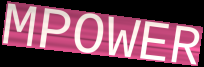
MPOWER